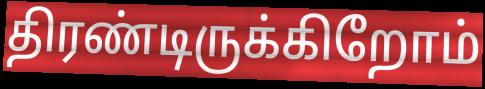
திரண்டிருக்கிறோம்